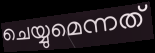
ചെയ്യുമെന്നത്